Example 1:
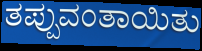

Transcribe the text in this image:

ತಪ್ಪುವಂತಾಯಿತು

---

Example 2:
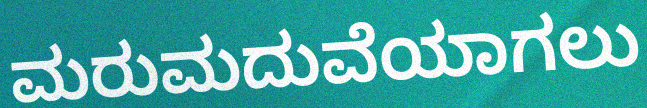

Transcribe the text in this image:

ಮರುಮದುವೆಯಾಗಲು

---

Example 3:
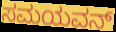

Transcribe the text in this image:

ಸಮಯವನ್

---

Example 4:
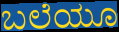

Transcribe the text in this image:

ಬಲೆಯೂ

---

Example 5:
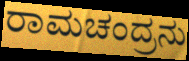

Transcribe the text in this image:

ರಾಮಚಂದ್ರನು